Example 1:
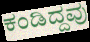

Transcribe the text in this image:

ಕಂಡಿದ್ದವು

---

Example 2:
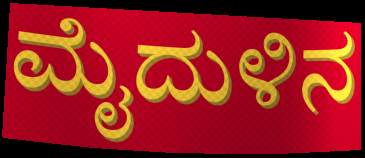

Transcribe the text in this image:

ಮೈದುಳಿನ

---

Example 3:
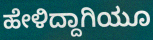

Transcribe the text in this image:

ಹೇಳಿದ್ದಾಗಿಯೂ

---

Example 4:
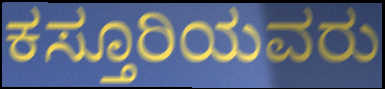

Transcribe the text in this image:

ಕಸ್ತೂರಿಯವರು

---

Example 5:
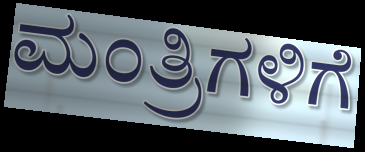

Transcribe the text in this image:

ಮಂತ್ರಿಗಳಿಗೆ